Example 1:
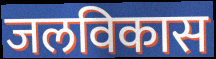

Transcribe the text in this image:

जलविकास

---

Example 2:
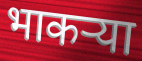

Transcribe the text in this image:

भाकऱ्या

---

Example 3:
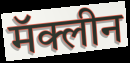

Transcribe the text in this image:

मॅक्लीन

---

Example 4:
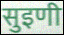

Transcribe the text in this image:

सुइणी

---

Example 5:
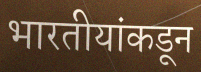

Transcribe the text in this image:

भारतीयांकडून